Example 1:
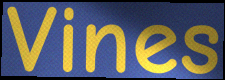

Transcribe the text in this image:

Vines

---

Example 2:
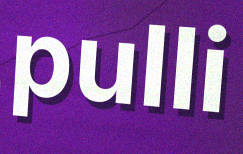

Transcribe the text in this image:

pulli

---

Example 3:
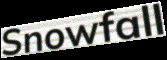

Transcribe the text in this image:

Snowfall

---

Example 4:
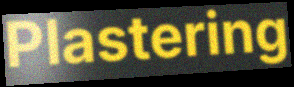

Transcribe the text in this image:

Plastering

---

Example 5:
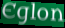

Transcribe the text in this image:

Eglon